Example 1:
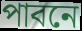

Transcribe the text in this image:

পাবনে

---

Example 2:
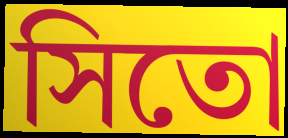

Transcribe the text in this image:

সিতো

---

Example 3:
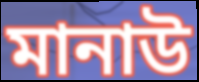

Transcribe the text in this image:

মানাউ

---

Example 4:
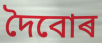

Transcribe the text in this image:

দৈবোৰ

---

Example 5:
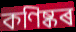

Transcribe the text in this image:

কণিষ্কৰ